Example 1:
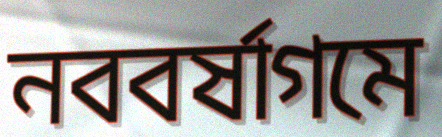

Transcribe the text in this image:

নববর্ষাগমে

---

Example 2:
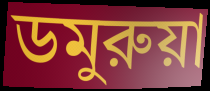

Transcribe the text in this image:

ডমুরুয়া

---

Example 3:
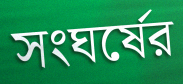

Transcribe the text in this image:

সংঘর্ষের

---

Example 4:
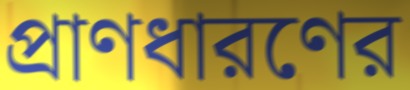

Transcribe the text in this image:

প্রাণধারণের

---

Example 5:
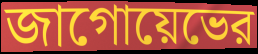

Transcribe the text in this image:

জাগোয়েভের